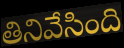
తినివేసింది